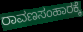
ರಾವಣಸಂಹಾರಕ್ಕೆ